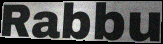
Rabbu